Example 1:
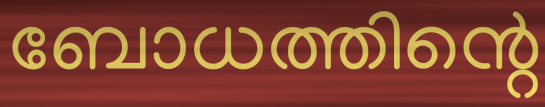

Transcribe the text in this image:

ബോധത്തിന്റെ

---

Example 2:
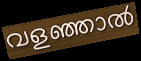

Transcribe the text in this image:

വളഞ്ഞാൽ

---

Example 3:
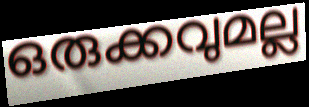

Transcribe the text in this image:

ഒരുക്കവുമല്ല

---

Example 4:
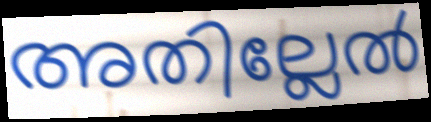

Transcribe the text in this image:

അതില്ലേൽ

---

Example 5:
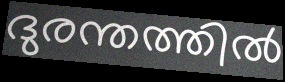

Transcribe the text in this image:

ദുരന്തത്തിൽ